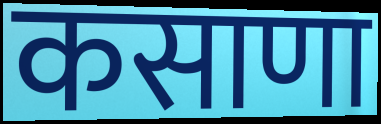
कसाणा